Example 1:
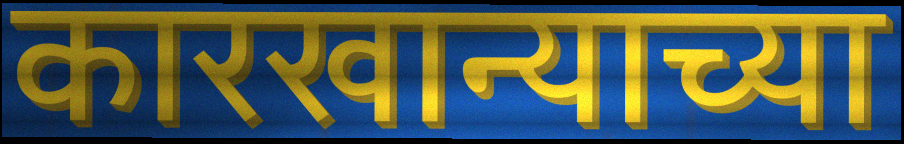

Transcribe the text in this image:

कारखान्याच्या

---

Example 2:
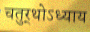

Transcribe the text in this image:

चतुर्थोऽध्याय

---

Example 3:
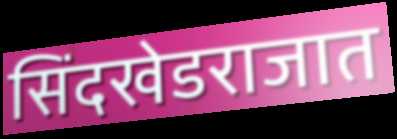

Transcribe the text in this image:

सिंदखेडराजात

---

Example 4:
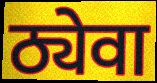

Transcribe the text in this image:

ठ्येवा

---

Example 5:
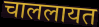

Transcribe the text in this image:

चाललायत